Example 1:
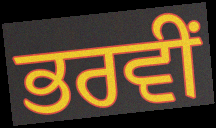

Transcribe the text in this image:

ਭਰਵੀਂ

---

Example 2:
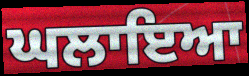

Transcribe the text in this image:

ਘਲਾਇਆ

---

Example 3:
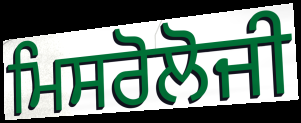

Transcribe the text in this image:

ਮਿਸਰੋਲੋਜੀ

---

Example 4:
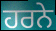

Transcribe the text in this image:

ਹਰਨੇ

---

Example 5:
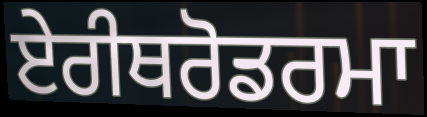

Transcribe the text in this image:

ਏਰੀਥਰੋਡਰਮਾ